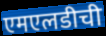
एमएलडीची